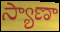
స్యాణా